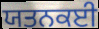
ਯਤਨਕਈ